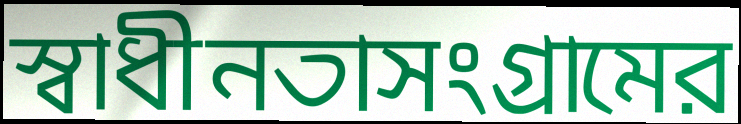
স্বাধীনতাসংগ্রামের